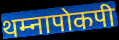
थम्नापोकपी